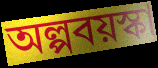
অল্পবয়স্কা